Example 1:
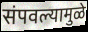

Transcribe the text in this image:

संपवल्यामुळे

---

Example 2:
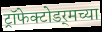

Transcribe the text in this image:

ट्रॉफेक्टोडर्मच्या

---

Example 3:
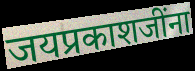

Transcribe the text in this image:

जयप्रकाशजींना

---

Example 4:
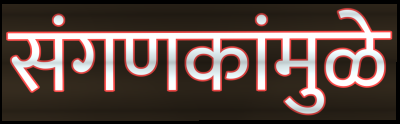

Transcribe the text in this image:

संगणकांमुळे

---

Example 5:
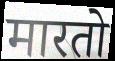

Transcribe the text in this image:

मारतो